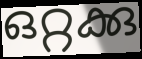
ഒറ്റക്കു